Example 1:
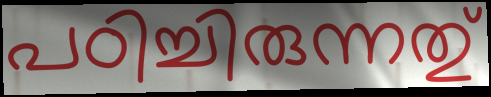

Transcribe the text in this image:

പഠിച്ചിരുന്നതു്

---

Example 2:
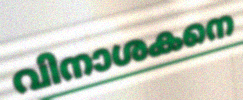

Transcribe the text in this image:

വിനാശകനെ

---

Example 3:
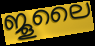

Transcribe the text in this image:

ജൂലൈ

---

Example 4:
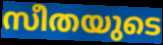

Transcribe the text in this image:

സീതയുടെ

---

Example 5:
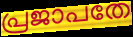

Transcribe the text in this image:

പ്രജാപതേ